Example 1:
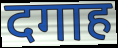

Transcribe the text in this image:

दगाह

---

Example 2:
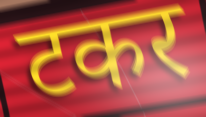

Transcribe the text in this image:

टकर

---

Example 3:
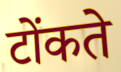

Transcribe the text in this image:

टोंकते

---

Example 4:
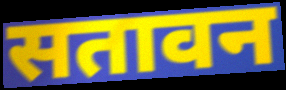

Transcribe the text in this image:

सतावन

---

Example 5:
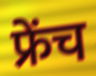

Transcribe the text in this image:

फ्रेंच